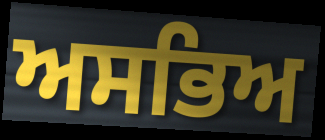
ਅਸਭਿਅ